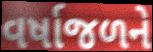
વર્ષાજળને